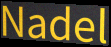
Nadel